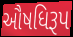
ઔષધિરૂપ